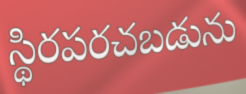
స్థిరపరచబడును